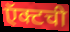
ऍक्टची